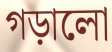
গড়ালো